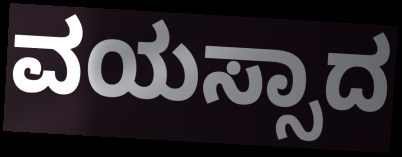
ವಯಸ್ಸಾದ